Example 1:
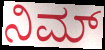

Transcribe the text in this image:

ನಿಮ್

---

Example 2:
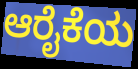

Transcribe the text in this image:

ಆರೈಕೆಯ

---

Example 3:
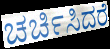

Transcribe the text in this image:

ಚರ್ಚಿಸಿದರೆ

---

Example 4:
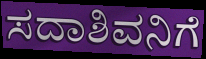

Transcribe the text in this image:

ಸದಾಶಿವನಿಗೆ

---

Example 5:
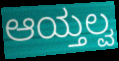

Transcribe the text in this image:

ಆಯ್ತಲ್ವ